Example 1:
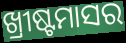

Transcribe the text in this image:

ଖ୍ରୀଷ୍ଟମାସର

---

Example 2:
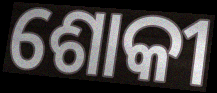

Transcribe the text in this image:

ଶୋକୀ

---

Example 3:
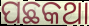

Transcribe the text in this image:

ପଛକଥା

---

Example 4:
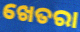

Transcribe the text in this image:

ଖେତରା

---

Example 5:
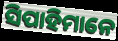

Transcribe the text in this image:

ସିପାହିମାନେ